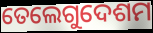
ତେଲେଗୁଦେଶମ